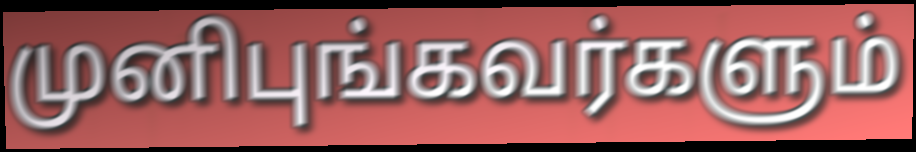
முனிபுங்கவர்களும்